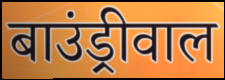
बाउंड्रीवाल